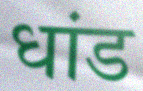
धांड